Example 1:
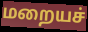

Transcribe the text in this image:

மறையச்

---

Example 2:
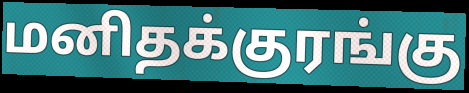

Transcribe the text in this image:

மனிதக்குரங்கு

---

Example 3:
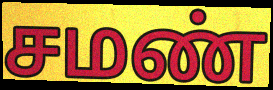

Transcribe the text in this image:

சமண்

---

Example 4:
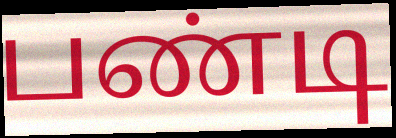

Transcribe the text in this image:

பண்டி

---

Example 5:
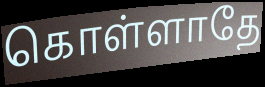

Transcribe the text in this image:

கொள்ளாதே